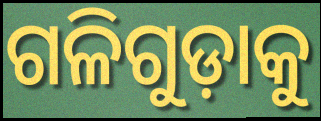
ଗଳିଗୁଡ଼ାକୁ